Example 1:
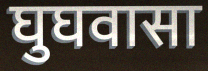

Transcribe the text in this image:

घुघवासा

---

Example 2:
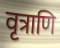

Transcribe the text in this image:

वृत्राणि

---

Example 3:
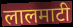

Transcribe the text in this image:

लालमाटी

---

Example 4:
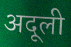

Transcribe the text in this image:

अदूली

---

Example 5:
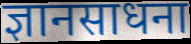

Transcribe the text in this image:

ज्ञानसाधना